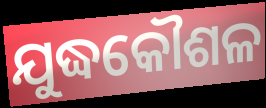
ଯୁଦ୍ଧକୌଶଳ